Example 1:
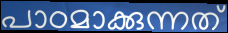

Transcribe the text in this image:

പാഠമാക്കുന്നത്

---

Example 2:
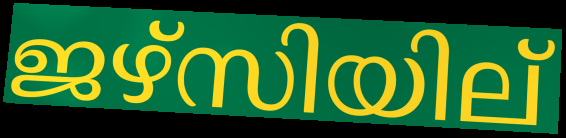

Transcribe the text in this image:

ജഴ്സിയില്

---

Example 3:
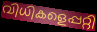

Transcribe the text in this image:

വിധികളെപ്പറ്റി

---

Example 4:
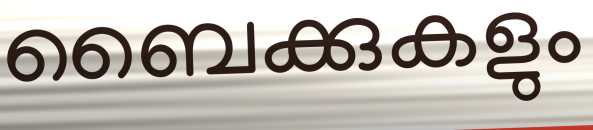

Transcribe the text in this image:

ബൈക്കുകളും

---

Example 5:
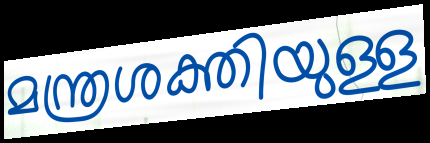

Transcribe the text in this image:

മന്ത്രശക്തിയുള്ള